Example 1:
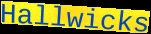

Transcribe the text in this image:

Hallwicks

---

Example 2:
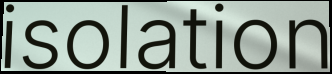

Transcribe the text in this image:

isolation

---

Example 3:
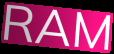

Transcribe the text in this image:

RAM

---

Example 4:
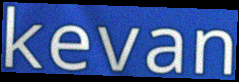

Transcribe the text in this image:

kevan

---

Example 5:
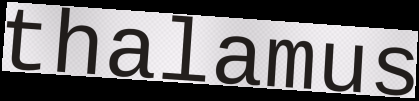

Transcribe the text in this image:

thalamus